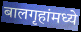
बालगृहांमध्ये